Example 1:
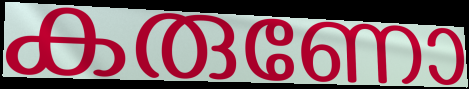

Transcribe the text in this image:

കരുണോ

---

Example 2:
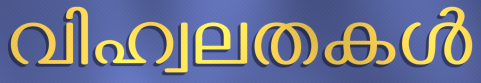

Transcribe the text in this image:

വിഹ്വലതകൾ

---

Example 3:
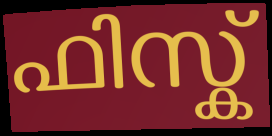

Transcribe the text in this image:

ഫിസ്ക്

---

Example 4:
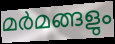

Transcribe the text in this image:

മർമങ്ങളും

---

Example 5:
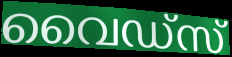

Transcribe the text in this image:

വൈഡ്സ്